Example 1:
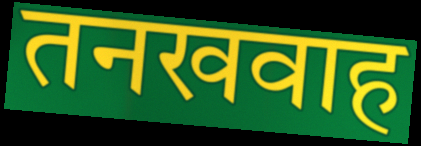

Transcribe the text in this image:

तनखवाह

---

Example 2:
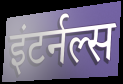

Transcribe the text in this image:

इंटर्नल्स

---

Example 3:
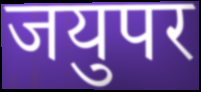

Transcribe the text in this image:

जयुपर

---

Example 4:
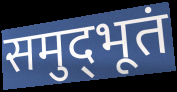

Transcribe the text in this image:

समुद्भूतं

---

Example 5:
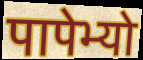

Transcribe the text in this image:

पापेभ्यो